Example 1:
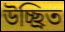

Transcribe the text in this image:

উচ্ছ্রিত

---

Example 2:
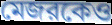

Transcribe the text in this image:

মেজরকেও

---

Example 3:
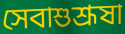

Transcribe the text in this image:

সেবাশুশ্রূষা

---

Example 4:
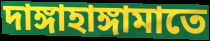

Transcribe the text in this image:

দাঙ্গাহাঙ্গামাতে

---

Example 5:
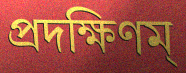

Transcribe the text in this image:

প্রদক্ষিণম্